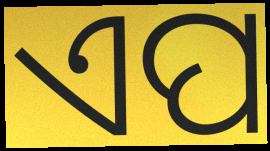
ଏପ